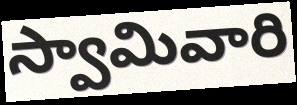
స్వామివారి